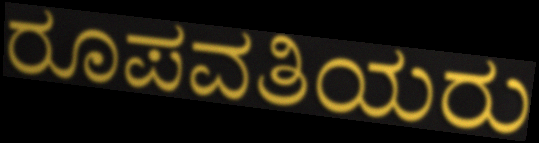
ರೂಪವತಿಯರು